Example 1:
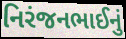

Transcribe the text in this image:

નિરંજનભાઈનું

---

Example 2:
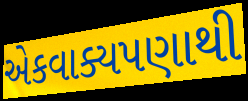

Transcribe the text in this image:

એકવાક્યપણાથી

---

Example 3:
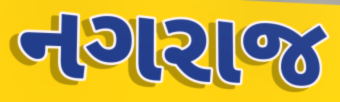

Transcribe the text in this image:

નગરાજ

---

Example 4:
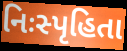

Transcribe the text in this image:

નિઃસ્પૃહિતા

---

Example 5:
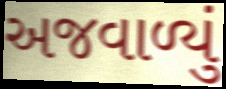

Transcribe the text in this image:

અજવાળ્યું